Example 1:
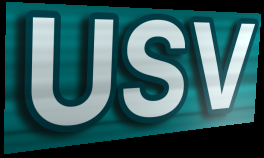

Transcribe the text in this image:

USV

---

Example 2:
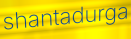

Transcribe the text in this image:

shantadurga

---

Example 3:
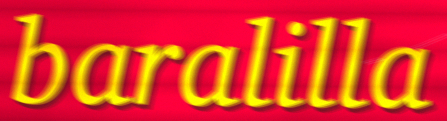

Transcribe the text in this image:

baralilla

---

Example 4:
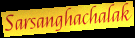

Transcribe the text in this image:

Sarsanghachalak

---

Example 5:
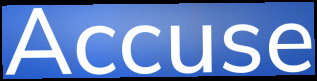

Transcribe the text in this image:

Accuse